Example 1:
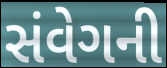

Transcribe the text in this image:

સંવેગની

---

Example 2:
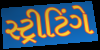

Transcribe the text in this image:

સ્ટ્રીટિંગે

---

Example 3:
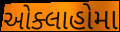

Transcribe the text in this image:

ઓક્લાહોમા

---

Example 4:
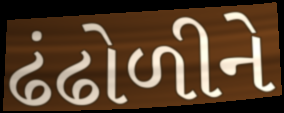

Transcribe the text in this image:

ઢંઢોળીને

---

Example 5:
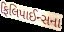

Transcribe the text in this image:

ફિલિપાઈન્સના